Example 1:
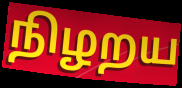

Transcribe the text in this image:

நிழறய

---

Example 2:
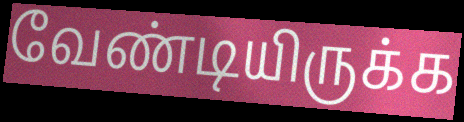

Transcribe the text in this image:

வேண்டியிருக்க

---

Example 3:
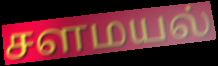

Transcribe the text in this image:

சளமயல்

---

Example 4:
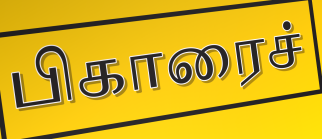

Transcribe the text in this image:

பிகாரைச்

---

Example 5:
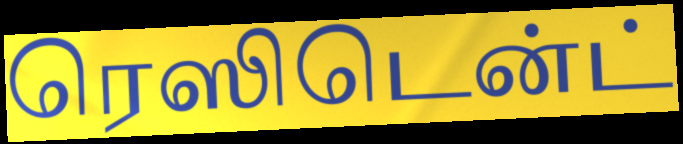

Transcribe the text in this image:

ரெஸிடென்ட்